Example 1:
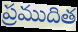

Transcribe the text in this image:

ప్రముదిత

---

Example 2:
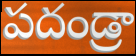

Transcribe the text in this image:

పదండ్రా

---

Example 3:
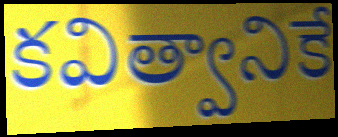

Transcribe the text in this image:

కవిత్వానికే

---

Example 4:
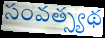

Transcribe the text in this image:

సంవత్స్యథ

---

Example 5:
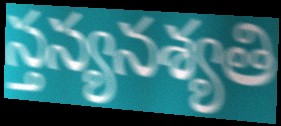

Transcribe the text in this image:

స్తస్యనశ్యతి